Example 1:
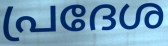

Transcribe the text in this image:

പ്രദേശ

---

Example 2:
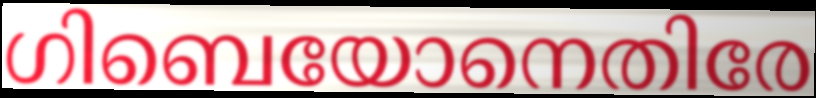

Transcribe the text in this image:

ഗിബെയോനെതിരേ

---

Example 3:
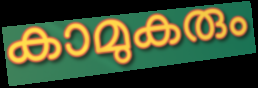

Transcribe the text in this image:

കാമുകരും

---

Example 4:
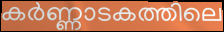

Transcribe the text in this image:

കർണ്ണാടകത്തിലെ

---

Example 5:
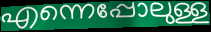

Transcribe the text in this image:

എന്നെപ്പോലുള്ള